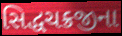
સિદ્ધચક્રજીના